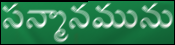
సన్మానమును